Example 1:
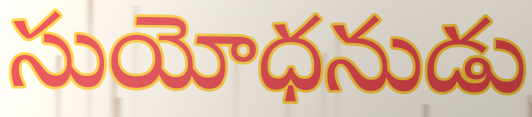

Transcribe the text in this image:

సుయోధనుడు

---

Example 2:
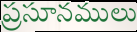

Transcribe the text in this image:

ప్రసూనములు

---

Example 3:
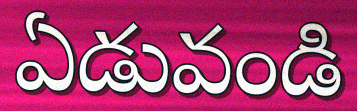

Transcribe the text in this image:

ఏడువండి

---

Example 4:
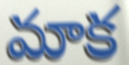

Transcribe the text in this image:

మాక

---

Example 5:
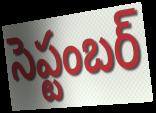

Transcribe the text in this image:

సెప్టంబర్